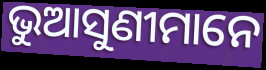
ଭୁଆସୁଣୀମାନେ